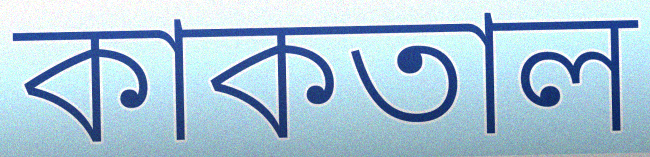
কাকতাল